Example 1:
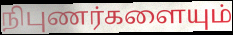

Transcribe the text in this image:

நிபுணர்களையும்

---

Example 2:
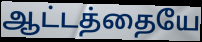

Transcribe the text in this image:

ஆட்டத்தையே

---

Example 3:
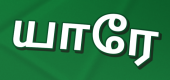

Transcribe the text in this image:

யாரே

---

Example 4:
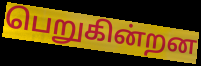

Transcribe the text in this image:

பெறுகின்றன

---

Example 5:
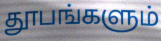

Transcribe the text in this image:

தூபங்களும்